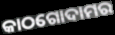
କାଠଗୋଦାମର